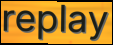
replay